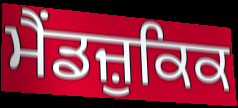
ਮੈਂਡਜ਼ੁਕਿਕ